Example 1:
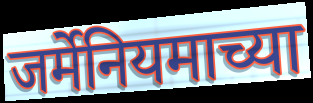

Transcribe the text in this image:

जर्मेनियमाच्या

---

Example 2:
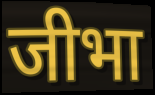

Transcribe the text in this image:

जीभा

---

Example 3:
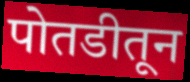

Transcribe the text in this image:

पोतडीतून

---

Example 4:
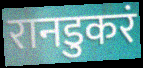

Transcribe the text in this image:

रानडुकरं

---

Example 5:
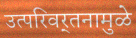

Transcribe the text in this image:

उत्परिवर्तनामुळे